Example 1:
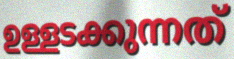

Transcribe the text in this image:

ഉള്ളടക്കുന്നത്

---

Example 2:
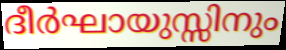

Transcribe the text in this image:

ദീർഘായുസ്സിനും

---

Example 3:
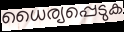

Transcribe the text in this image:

ധൈര്യപ്പെടുക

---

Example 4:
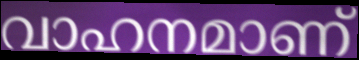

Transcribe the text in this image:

വാഹനമാണ്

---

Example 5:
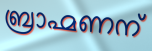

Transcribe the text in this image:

ബ്രാഹ്മണന്